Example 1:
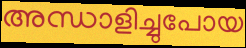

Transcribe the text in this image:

അന്ധാളിച്ചുപോയ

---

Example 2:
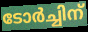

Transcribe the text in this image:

ടോർച്ചിന്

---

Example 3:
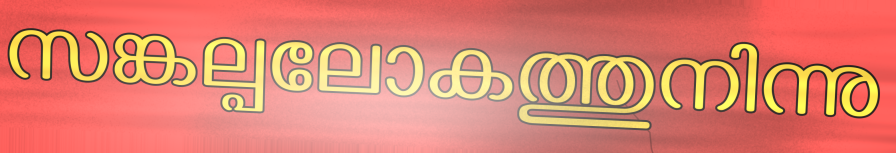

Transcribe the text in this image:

സങ്കല്പലോകത്തുനിന്നു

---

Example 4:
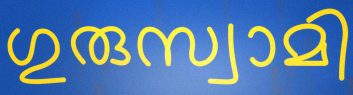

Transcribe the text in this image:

ഗുരുസ്വാമി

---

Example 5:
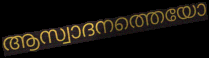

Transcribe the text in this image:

ആസ്വാദനത്തെയോ